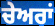
ਚੇਅਰਾਂ